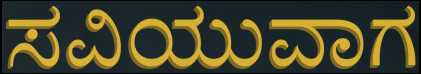
ಸವಿಯುವಾಗ